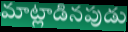
మాట్లాడినపుడు